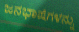
ಜನಭಾಷೆಗಳನ್ನು